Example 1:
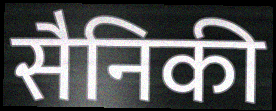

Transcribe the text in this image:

सैनिकी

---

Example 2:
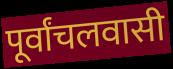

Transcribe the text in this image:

पूर्वांचलवासी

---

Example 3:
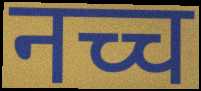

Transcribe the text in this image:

नच्च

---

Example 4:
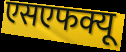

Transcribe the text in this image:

एसएफक्यू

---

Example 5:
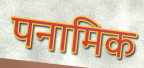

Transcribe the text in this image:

पनामिक